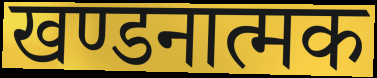
खण्डनात्मक